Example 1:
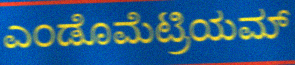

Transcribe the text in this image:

ಎಂಡೊಮೆಟ್ರಿಯಮ್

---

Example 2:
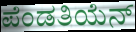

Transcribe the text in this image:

ಪೆಂಡತಿಯೆನ್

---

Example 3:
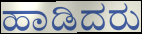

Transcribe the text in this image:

ಹಾಡಿದರು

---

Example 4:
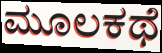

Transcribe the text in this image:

ಮೂಲಕಥೆ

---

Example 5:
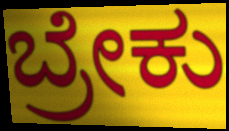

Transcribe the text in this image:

ಬ್ರೇಕು